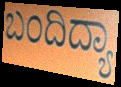
ಬಂದಿದ್ಯಾ